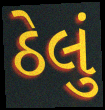
ઠેલું